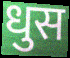
धुस